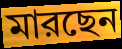
মারছেন